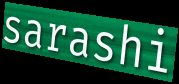
sarashi